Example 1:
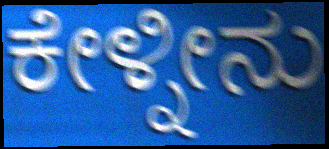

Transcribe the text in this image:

ಕೇಳ್ನೀನು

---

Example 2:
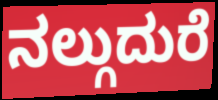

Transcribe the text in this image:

ನಲ್ಗುದುರೆ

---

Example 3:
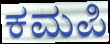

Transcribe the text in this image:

ಕಮಪಿ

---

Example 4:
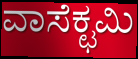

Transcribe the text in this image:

ವಾಸೆಕ್ಟಮಿ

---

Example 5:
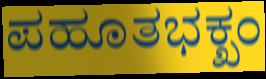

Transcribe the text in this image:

ಪಹೂತಭಕ್ಖಂ